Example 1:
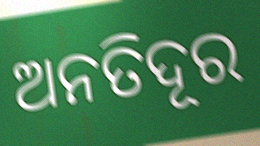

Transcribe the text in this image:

ଅନତିଦୂର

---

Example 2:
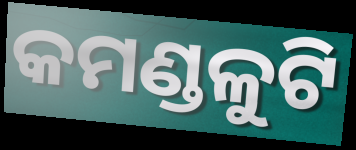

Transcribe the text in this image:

କମଣ୍ଡଳୁଟି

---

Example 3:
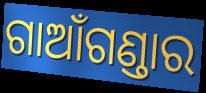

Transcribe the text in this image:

ଗାଆଁଗଣ୍ଡାର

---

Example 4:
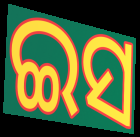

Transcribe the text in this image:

ଇସ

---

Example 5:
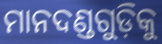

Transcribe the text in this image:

ମାନଦଣ୍ଡଗୁଡ଼ିକୁ